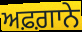
ਅਫ਼ਗ਼ਾਨੇ